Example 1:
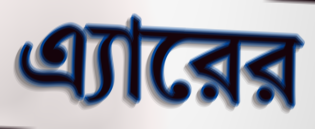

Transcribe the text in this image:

এ্যারের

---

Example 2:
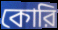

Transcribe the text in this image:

কোরি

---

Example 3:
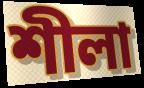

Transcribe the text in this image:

শীলা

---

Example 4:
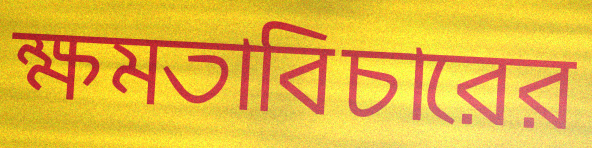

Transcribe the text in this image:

ক্ষমতাবিচারের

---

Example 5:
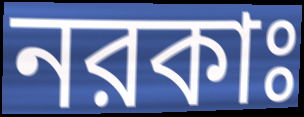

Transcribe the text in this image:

নরকাঃ